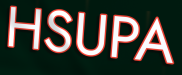
HSUPA